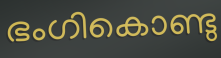
ഭംഗികൊണ്ടു